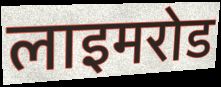
लाइमरोड